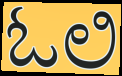
ಓಲಿ